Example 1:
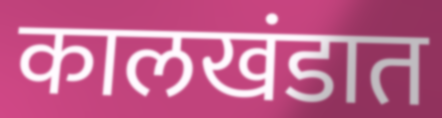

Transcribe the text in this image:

कालखंडात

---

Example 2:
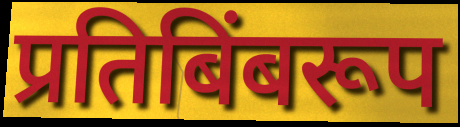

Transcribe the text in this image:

प्रतिबिंबरूप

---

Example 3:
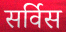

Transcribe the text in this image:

सर्विस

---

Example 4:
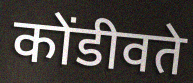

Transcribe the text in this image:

कोंडीवते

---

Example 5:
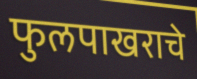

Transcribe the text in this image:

फुलपाखराचे